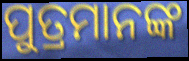
ପୁତ୍ରମାନଙ୍କ